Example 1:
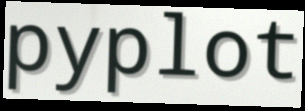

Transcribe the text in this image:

pyplot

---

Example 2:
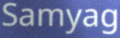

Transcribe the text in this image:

Samyag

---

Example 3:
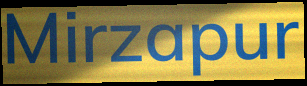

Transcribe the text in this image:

Mirzapur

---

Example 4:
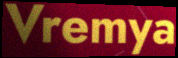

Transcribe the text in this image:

Vremya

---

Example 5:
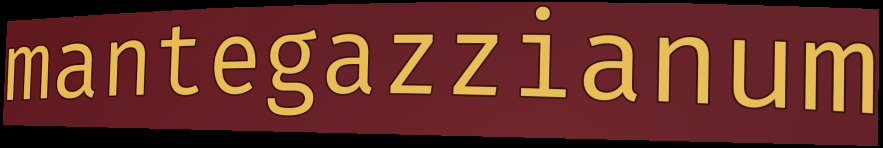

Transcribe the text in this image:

mantegazzianum